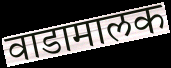
वाडामालक